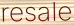
resale